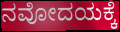
ನವೋದಯಕ್ಕೆ